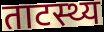
ताटस्थ्य